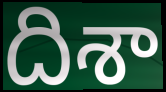
దిశా